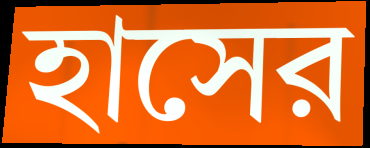
হাসের